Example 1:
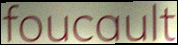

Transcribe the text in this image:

foucault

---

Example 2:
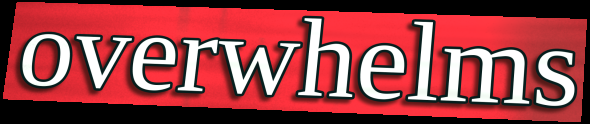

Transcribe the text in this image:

overwhelms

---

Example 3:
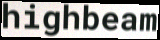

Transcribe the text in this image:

highbeam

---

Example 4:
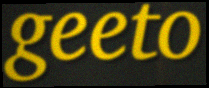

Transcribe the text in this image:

geeto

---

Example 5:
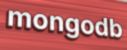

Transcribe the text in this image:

mongodb